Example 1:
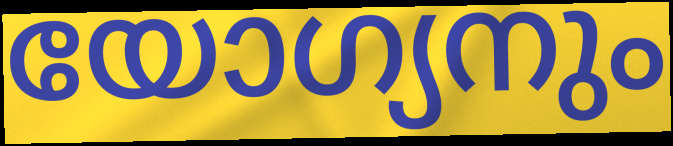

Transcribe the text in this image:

യോഗ്യനും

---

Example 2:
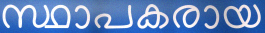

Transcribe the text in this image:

സ്ഥാപകരായ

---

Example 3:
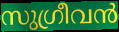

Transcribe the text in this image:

സുഗ്രീവൻ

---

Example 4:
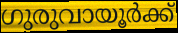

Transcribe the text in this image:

ഗുരുവായൂർക്ക്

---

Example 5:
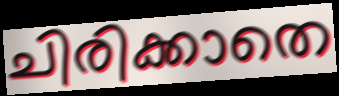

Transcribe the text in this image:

ചിരിക്കാതെ